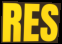
RES